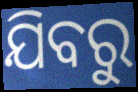
ଯିବରୁ